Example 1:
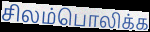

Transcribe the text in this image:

சிலம்பொலிக்க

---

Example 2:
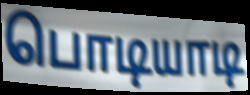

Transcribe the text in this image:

பொடியாடி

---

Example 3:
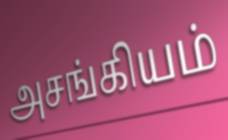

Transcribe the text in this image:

அசங்கியம்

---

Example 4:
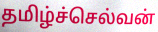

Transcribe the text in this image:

தமிழ்ச்செல்வன்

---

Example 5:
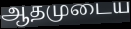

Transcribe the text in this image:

ஆதமுடைய